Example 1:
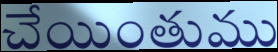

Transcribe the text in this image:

చేయింతుము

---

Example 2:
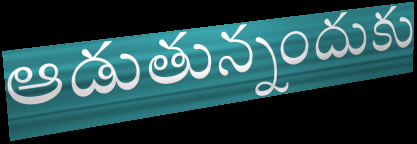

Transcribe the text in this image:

ఆడుతున్నందుకు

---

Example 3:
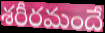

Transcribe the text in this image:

శరీరమందే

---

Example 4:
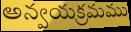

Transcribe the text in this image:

అన్వయక్రమము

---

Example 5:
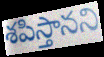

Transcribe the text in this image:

శపిస్తానని